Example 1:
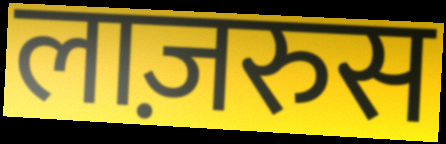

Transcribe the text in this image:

लाज़रुस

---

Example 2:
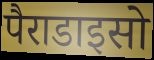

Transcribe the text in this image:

पैराडाइसो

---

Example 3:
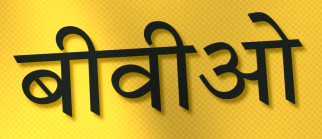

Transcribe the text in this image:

बीवीओ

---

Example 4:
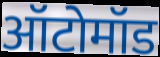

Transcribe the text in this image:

ऑटोमॉड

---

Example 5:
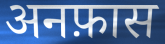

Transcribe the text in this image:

अनफ़ास